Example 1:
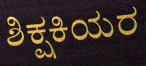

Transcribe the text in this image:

ಶಿಕ್ಷಕಿಯರ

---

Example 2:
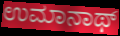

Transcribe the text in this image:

ಉಮಾನಾಥ್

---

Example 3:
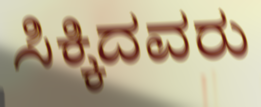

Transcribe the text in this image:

ಸಿಕ್ಕಿದವರು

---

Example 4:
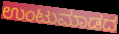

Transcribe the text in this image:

ಉಂಟುಮಾಡದ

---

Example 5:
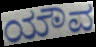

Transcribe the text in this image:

ಯೌವ